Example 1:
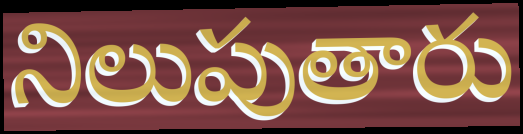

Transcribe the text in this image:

నిలుపుతారు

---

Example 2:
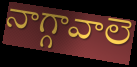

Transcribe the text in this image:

నాగ్గావాలె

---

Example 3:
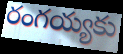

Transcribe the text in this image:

రంగయ్యకు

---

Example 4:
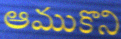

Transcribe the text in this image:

ఆముకొని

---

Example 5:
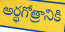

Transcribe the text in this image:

అర్ధగోత్రానికి